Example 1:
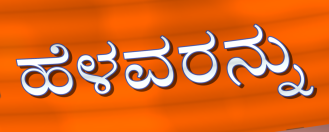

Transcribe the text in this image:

ಹೆಳವರನ್ನು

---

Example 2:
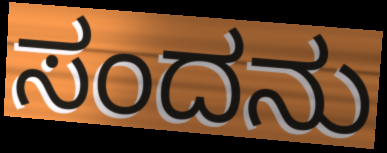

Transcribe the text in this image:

ಸಂದನು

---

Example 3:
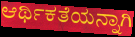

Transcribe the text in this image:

ಆರ್ಥಿಕತೆಯನ್ನಾಗಿ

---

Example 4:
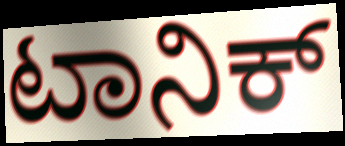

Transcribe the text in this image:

ಟಾನಿಕ್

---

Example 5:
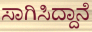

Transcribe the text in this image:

ಸಾಗಿಸಿದ್ದಾನೆ